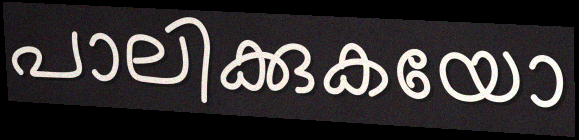
പാലിക്കുകയോ